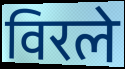
विरले